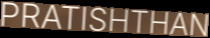
PRATISHTHAN